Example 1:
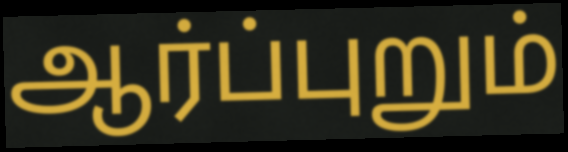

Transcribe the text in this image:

ஆர்ப்புறும்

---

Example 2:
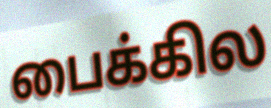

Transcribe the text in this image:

பைக்கில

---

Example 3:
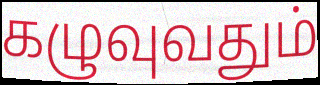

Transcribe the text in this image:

கழுவுவதும்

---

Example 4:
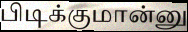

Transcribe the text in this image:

பிடிக்குமான்னு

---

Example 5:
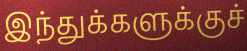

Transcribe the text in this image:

இந்துக்களுக்குச்